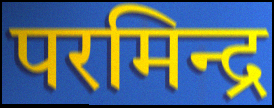
परमिन्द्र